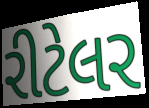
રીટેલર